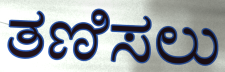
ತಣಿಸಲು